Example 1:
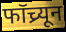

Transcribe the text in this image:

फॉच्र्यून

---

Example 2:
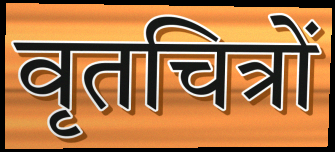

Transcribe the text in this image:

वृतचित्रों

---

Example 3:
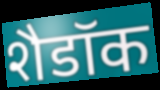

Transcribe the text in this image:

शैडॉक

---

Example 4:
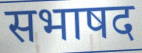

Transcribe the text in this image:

सभाषद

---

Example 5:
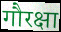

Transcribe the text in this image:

गौरक्षा